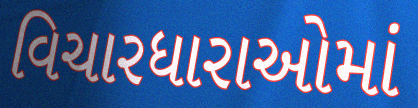
વિચારધારાઓમાં